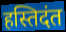
हस्तिदंत